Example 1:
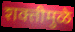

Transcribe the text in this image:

शक्तीमुळे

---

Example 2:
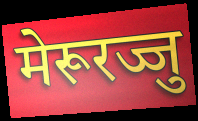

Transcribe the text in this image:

मेरूरज्जु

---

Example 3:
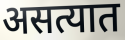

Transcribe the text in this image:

असत्यात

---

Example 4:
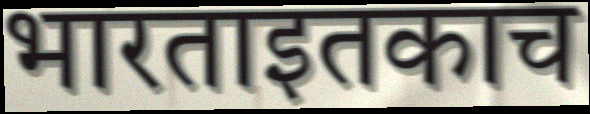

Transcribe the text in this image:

भारताइतकाच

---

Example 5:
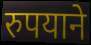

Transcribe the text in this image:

रुपयाने